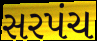
સરપંચ